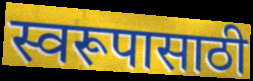
स्वरूपासाठी